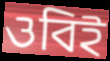
ওবিই